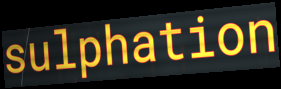
sulphation